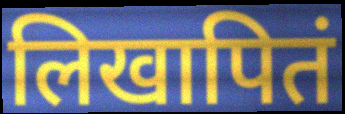
लिखापितं